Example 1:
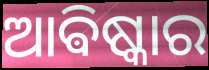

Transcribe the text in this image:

ଆଵିଷ୍କାର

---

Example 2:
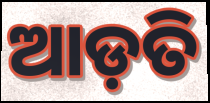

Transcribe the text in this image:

ଆଡ଼ତି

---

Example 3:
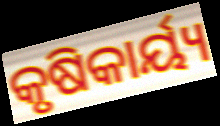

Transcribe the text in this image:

କୃଷିକାର୍ୟ୍ୟ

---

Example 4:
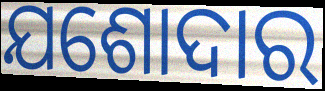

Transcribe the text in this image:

ଯଶୋଦାର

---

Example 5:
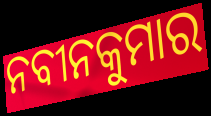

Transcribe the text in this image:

ନବୀନକୁମାର